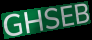
GHSEB